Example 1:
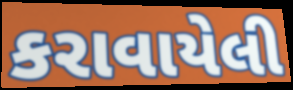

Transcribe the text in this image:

કરાવાયેલી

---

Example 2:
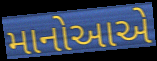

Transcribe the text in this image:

માનોઆએ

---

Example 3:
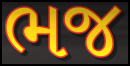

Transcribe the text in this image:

ભજ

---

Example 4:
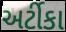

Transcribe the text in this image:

અર્ટીકા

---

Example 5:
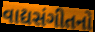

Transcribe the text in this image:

વાદ્યસંગીતનો